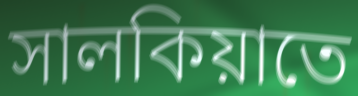
সালকিয়াতে